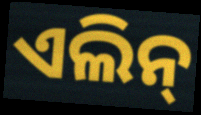
ଏଲିନ୍